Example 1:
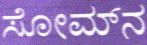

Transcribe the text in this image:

ಸೋಮ್‍ನ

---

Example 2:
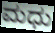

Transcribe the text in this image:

ಮಧು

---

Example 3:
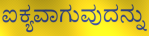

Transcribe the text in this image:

ಐಕ್ಯವಾಗುವುದನ್ನು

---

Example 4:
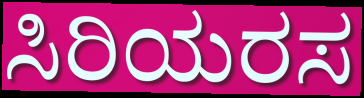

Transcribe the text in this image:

ಸಿರಿಯರಸ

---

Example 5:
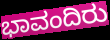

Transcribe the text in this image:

ಭಾವಂದಿರು